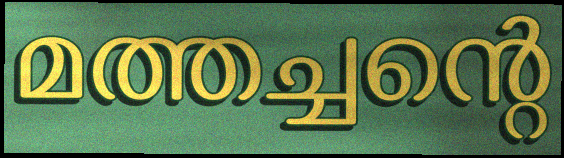
മത്തച്ചന്റെ